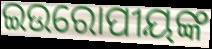
ଇଉରୋପୀୟଙ୍କ